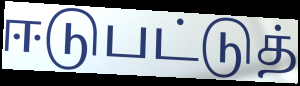
ஈடுபட்டுத்